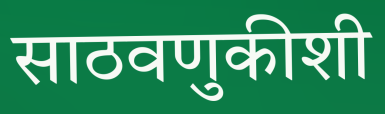
साठवणुकीशी